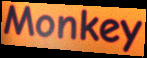
Monkey